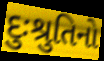
દુઃશ્રુતિનો